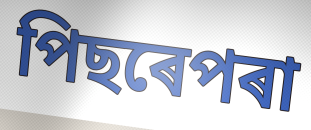
পিছৰেপৰা